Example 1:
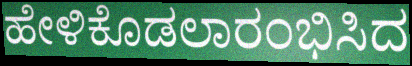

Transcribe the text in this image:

ಹೇಳಿಕೊಡಲಾರಂಭಿಸಿದ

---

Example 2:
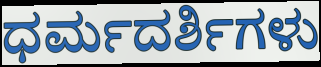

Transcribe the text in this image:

ಧರ್ಮದರ್ಶಿಗಳು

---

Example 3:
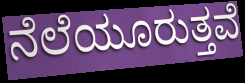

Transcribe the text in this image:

ನೆಲೆಯೂರುತ್ತವೆ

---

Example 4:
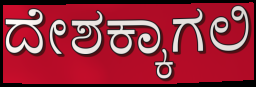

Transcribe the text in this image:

ದೇಶಕ್ಕಾಗಲಿ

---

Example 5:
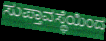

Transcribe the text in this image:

ಸುಪ್ತಾವಸ್ಥೆಯಿಂದ